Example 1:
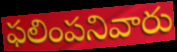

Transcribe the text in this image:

ఫలింపనివారు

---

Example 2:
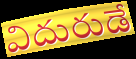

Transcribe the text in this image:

విదురుడే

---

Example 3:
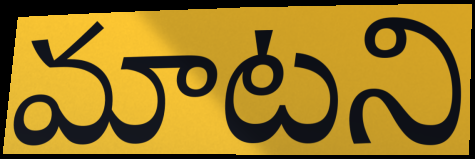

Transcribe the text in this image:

మాటని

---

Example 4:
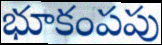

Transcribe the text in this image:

భూకంపపు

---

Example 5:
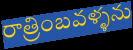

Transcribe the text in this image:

రాత్రింబవళ్ళను